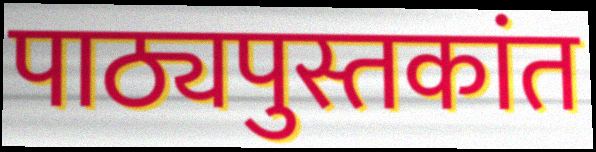
पाठ्यपुस्तकांत